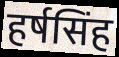
हर्षसिंह